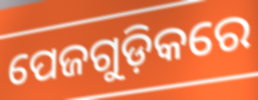
ପେଜଗୁଡ଼ିକରେ